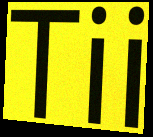
Tii